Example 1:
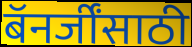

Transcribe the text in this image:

बॅनर्जींसाठी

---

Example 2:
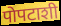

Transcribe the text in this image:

पोपटाशी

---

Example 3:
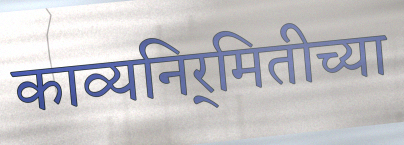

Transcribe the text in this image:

काव्यनिर्मितीच्या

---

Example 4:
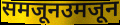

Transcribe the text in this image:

समजूनउमजून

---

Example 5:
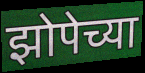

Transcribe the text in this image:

झोपेच्या